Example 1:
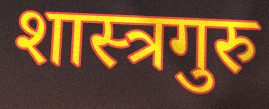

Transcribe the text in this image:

शास्त्रगुरु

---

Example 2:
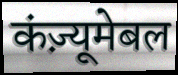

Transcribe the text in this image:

कंज़्यूमेबल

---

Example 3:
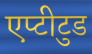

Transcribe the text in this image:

एप्टीटुड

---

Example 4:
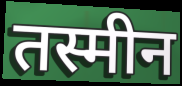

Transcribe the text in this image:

तस्मीन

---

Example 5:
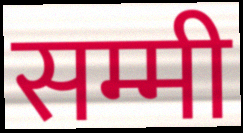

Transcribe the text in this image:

सम्मी